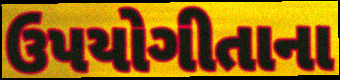
ઉપયોગીતાના